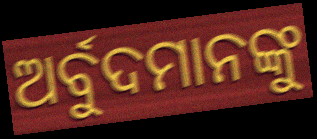
ଅର୍ବୁଦମାନଙ୍କୁ